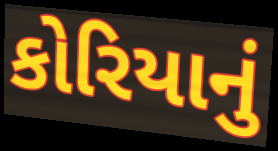
કોરિયાનું